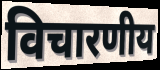
विचारणीय